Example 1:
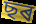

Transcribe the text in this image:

ছৰ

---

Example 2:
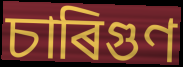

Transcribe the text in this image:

চাৰিগুণ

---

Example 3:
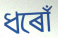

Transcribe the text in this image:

ধৰোঁ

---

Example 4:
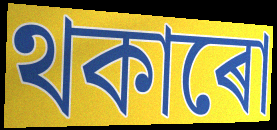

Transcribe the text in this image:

থকাৰো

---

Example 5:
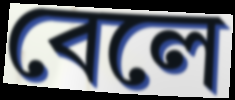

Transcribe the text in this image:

বেলে